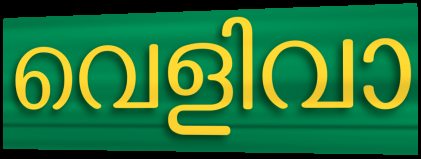
വെളിവാ